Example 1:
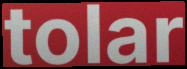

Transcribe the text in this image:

tolar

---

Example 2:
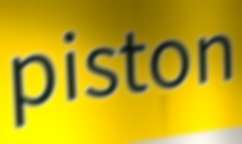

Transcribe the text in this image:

piston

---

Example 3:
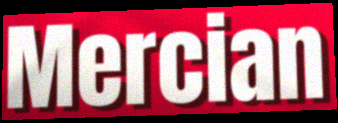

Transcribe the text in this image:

Mercian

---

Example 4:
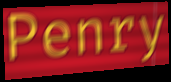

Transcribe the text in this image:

Penry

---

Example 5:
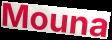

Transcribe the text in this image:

Mouna